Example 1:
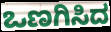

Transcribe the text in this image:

ಒಣಗಿಸಿದ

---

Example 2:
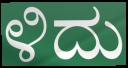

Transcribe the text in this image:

ಳಿದು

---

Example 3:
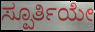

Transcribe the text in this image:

ಸ್ಪೂರ್ತಿಯೇ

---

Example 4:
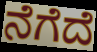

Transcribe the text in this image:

ನೆಗೆದೆ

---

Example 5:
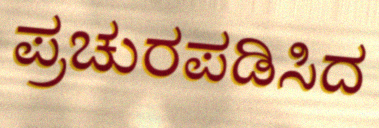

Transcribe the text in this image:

ಪ್ರಚುರಪಡಿಸಿದ